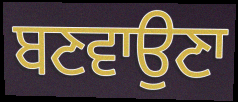
ਬਣਵਾਉਣਾ